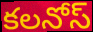
కలనోస్